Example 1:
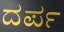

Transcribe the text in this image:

ದರ್ಪ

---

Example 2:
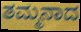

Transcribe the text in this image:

ತಮ್ಮನಾದ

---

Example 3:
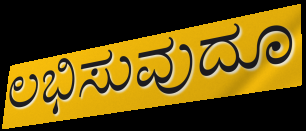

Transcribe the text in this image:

ಲಭಿಸುವುದೂ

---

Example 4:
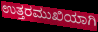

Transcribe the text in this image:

ಉತ್ತರಮುಖಿಯಾಗಿ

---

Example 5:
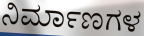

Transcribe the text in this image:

ನಿರ್ಮಾಣಗಳ